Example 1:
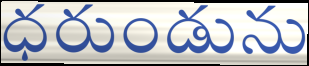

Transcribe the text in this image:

ధరుండును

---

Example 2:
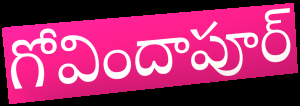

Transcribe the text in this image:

గోవిందాపూర్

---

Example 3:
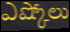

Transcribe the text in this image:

ఎష్కోలు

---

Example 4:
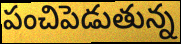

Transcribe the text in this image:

పంచిపెడుతున్న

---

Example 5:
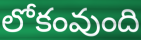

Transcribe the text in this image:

లోకంవుంది